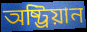
অষ্ট্ৰিয়ান